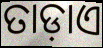
ତାଡ଼ାଏ